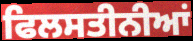
ਫਿਲਸਤੀਨੀਆਂ